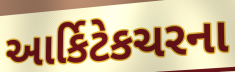
આર્કિટેકચરના